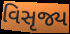
વિસૃજ્ય